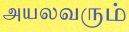
அயலவரும்